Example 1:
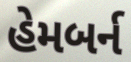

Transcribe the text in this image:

હેમબર્ન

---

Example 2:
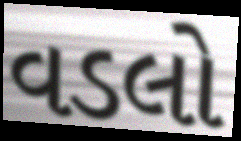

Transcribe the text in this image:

વડલો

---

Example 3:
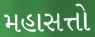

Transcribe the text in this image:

મહાસત્તો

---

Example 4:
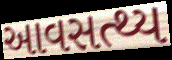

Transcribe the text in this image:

આવસત્થ્ય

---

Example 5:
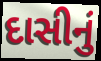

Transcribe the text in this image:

દાસીનું